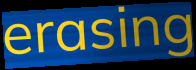
erasing